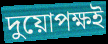
দুয়োপক্ষই